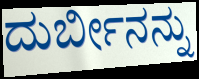
ದುರ್ಬೀನನ್ನು